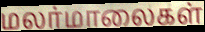
மலர்மாலைகள்